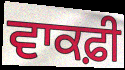
ਵਾਕਫ਼ੀ